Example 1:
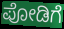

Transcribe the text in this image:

ಪೋಡಿಗೆ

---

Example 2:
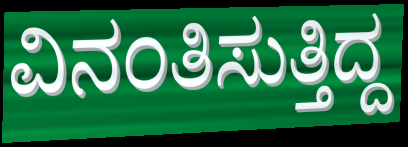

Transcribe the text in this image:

ವಿನಂತಿಸುತ್ತಿದ್ದ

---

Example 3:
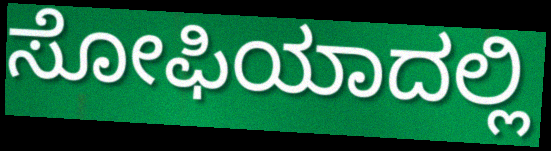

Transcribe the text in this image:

ಸೋಫಿಯಾದಲ್ಲಿ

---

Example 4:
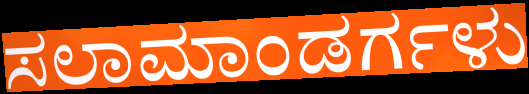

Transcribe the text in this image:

ಸಲಾಮಾಂಡರ್ಗಳು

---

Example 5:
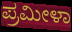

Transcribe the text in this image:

ಪ್ರಮೀಳಾ